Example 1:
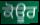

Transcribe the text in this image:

ਕੋਊਰ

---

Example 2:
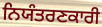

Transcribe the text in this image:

ਨਿਯੰਤਰਣਕਾਰੀ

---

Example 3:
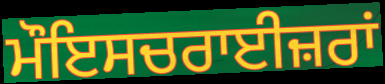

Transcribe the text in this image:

ਮੌਇਸਚਰਾਈਜ਼ਰਾਂ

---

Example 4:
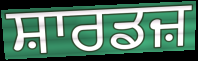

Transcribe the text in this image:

ਸ਼ਾਰਡਜ਼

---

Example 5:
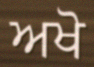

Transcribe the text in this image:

ਅਖੋ